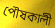
পৌষকালী